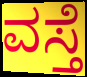
ವಸ್ತೆ